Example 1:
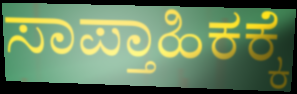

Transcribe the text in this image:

ಸಾಪ್ತಾಹಿಕಕ್ಕೆ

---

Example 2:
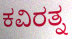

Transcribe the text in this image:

ಕವಿರತ್ನ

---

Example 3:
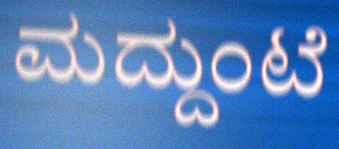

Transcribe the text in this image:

ಮದ್ದುಂಟೆ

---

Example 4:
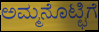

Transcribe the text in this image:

ಅಮ್ಮನೊಟ್ಟಿಗೆ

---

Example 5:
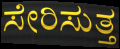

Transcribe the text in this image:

ಸೇರಿಸುತ್ತ